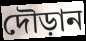
দৌড়ান